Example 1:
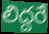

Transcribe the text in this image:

లిద్దరే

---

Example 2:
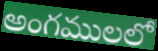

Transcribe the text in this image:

అంగములలో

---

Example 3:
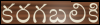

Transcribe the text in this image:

కరగబలికి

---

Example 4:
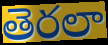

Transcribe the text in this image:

తెరలా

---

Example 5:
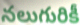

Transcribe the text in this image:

నలుగురికీ